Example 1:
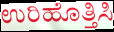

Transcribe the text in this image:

ಉರಿಹೊತ್ತಿಸಿ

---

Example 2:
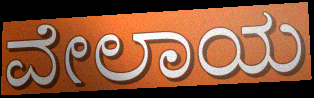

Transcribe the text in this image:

ವೇಲಾಯ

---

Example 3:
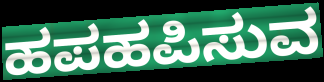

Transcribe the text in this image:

ಹಪಹಪಿಸುವ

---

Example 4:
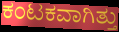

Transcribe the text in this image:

ಕಂಟಕವಾಗಿತ್ತು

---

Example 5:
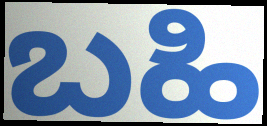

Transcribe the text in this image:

ಬಹಿ